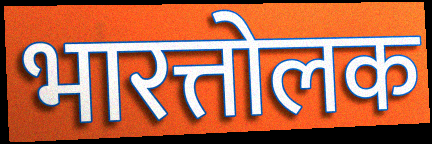
भारत्तोलक